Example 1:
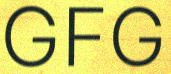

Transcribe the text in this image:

GFG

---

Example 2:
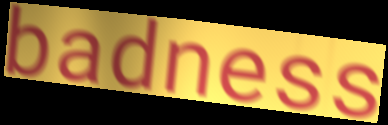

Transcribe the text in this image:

badness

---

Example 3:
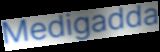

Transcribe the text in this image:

Medigadda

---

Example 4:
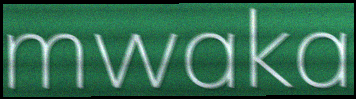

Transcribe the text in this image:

mwaka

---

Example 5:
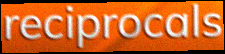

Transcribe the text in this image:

reciprocals